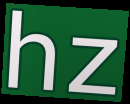
hz